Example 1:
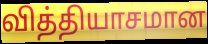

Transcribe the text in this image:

வித்தியாசமான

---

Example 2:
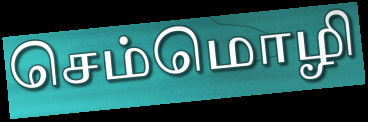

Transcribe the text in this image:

செம்மொழி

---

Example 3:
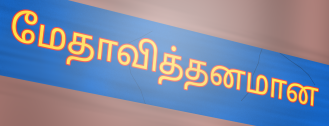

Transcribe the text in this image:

மேதாவித்தனமான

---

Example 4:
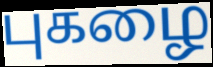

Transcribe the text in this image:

புகழை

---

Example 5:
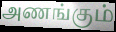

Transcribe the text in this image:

அணங்கும்